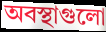
অবস্থাগুলো